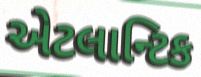
એટલાન્ટિક